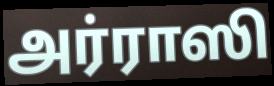
அர்ராஸி